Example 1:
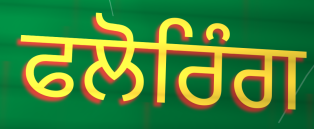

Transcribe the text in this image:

ਫਲੋਰਿੰਗ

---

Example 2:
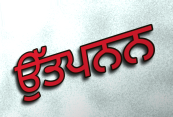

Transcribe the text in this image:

ਉੱਤਪਨਨ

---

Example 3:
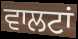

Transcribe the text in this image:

ਵਾਲਟਾਂ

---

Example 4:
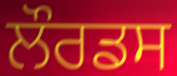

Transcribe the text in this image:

ਲੌਰਡਸ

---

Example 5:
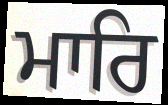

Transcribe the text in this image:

ਮਾਰਿ